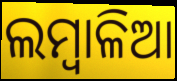
ଲମ୍ବାଳିଆ